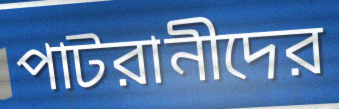
পাটরানীদের